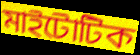
মাইটোটিক